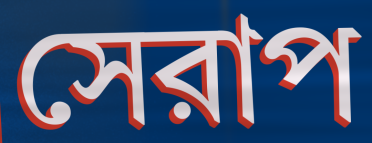
সেরাপ